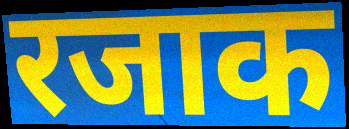
रजाक